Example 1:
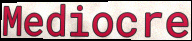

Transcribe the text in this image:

Mediocre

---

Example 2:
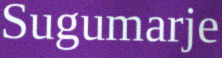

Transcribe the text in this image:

Sugumarje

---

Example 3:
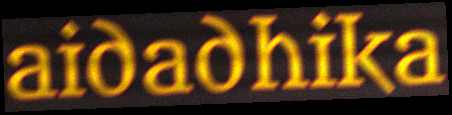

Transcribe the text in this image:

aidadhika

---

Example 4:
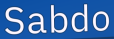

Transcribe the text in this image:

Sabdo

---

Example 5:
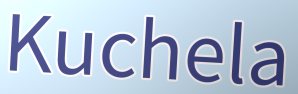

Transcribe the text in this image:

Kuchela